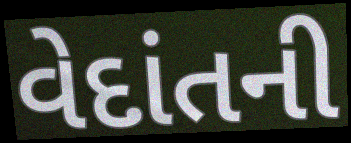
વેદાંતની